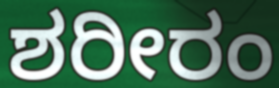
ಶರೀರಂ